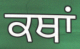
ਕਥਾਂ